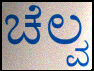
ಚೆಲ್ವ